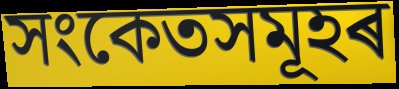
সংকেতসমূহৰ